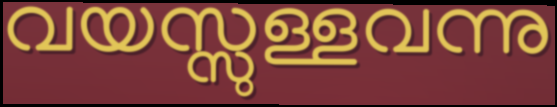
വയസ്സുള്ളവന്നു